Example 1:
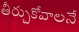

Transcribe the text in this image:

తీర్చుకోవాలనే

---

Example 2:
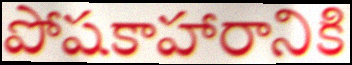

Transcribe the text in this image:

పోషకాహారానికి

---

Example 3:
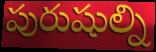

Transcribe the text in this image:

పురుషుల్ని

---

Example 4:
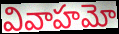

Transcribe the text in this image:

వివాహమో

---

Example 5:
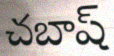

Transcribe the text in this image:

చబాష్